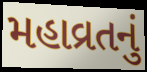
મહાવ્રતનું